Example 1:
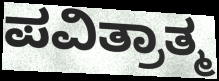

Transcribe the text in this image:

ಪವಿತ್ರಾತ್ಮ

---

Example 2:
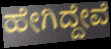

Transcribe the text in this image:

ಹೇಗಿದ್ದೇವೆ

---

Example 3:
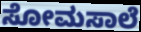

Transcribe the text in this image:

ಸೋಮಸಾಲೆ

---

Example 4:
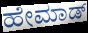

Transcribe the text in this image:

ಹೇಮಾಡ್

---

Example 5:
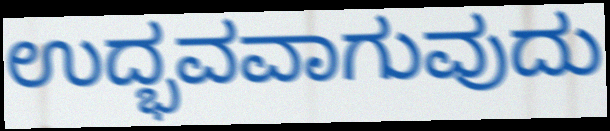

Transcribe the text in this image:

ಉದ್ಭವವಾಗುವುದು